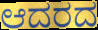
ಆದರದ